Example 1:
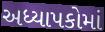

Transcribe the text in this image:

અધ્યાપકોમાં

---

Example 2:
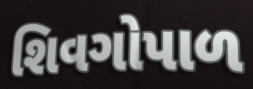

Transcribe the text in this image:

શિવગોપાળ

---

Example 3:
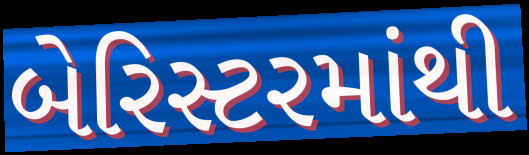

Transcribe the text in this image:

બેરિસ્ટરમાંથી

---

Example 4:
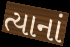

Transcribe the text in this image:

ત્યાનાં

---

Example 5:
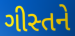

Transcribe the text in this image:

ગીસ્તને